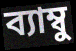
ব্যাম্বু